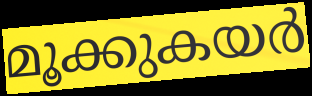
മൂക്കുകയർ